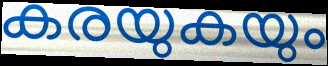
കരയുകയും